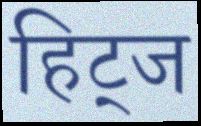
हिट्ज